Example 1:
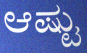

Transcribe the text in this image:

ಆಷ್ಟು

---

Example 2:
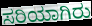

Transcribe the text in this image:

ಸರಿಯಾಗಿರು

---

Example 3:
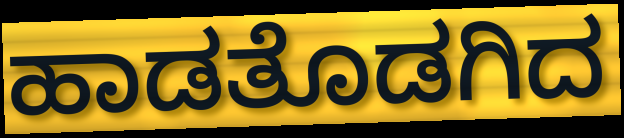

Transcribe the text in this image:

ಹಾಡತೊಡಗಿದ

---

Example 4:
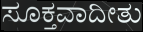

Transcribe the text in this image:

ಸೂಕ್ತವಾದೀತು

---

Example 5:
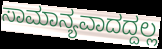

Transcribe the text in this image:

ಸಾಮಾನ್ಯವಾದದ್ದಲ್ಲ